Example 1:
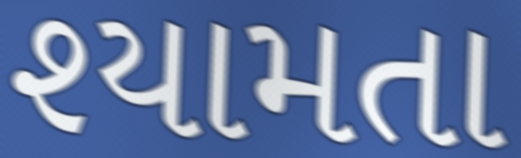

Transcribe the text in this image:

શ્યામતા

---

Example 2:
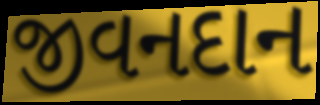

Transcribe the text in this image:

જીવનદાન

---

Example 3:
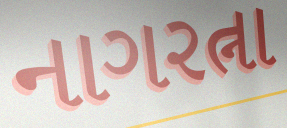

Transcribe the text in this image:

નાગરત્ના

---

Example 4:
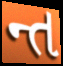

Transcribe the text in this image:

ન્ત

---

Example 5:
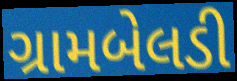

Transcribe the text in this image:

ગ્રામબેલડી